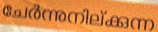
ചേർന്നുനില്ക്കുന്ന